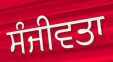
ਸੰਜੀਵਤਾ